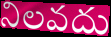
నిలవదు